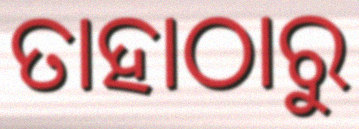
ତାହାଠାରୁ